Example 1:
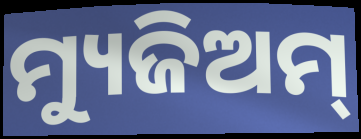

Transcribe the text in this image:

ମ୍ୟୁଜିଅମ୍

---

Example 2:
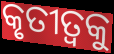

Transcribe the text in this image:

କୃତୀତ୍ଵକୁ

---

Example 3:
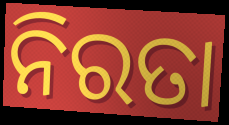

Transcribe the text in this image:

ନିରତା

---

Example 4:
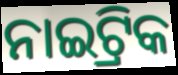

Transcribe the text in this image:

ନାଇଟ୍ରିକ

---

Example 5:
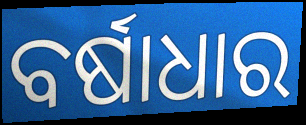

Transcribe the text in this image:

ବର୍ଷାଧାର